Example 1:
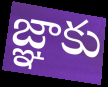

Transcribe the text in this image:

జ్ఞాకు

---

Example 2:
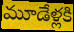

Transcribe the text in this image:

మూడేళ్లకి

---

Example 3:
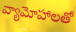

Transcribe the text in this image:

వ్యామోహాలతో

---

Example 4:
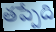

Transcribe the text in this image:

తప్పేది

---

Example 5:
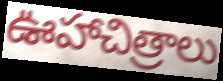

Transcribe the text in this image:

ఊహాచిత్రాలు